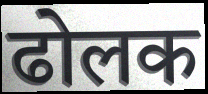
ढोलक